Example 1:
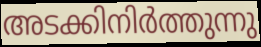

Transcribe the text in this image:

അടക്കിനിർത്തുന്നു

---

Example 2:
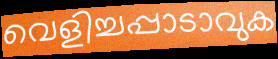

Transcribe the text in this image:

വെളിച്ചപ്പാടാവുക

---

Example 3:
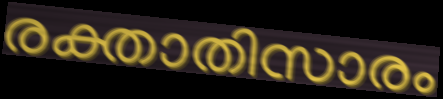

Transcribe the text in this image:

രക്താതിസാരം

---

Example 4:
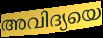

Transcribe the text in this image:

അവിദ്യയെ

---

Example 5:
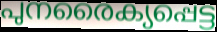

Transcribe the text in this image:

പുനരൈക്യപ്പെട്ട